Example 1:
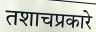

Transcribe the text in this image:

तशाचप्रकारे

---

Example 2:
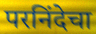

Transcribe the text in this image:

परनिंदेचा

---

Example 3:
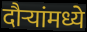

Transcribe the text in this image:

दौऱ्यांमध्ये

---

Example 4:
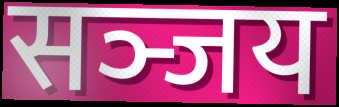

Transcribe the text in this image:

सञ्जय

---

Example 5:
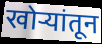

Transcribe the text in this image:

खोऱ्यांतून